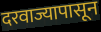
दरवाज्यापासून